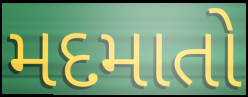
મદમાતો